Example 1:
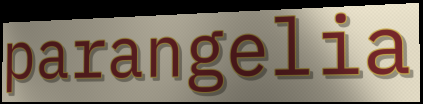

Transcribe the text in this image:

parangelia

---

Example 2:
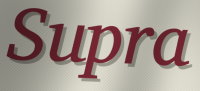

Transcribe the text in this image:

Supra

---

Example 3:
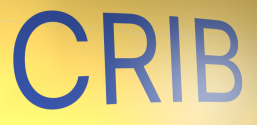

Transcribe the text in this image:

CRIB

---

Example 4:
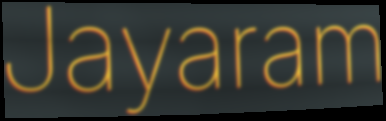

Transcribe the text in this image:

Jayaram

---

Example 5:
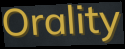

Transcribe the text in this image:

Orality